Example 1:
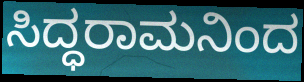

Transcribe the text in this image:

ಸಿದ್ಧರಾಮನಿಂದ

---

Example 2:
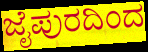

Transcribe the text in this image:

ಜೈಪುರದಿಂದ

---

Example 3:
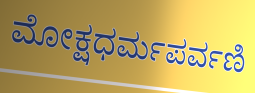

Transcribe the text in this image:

ಮೋಕ್ಷಧರ್ಮಪರ್ವಣಿ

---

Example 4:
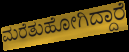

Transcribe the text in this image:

ಮರೆತುಹೋಗಿದ್ದಾರೆ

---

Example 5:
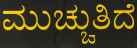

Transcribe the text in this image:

ಮುಚ್ಚುತಿದೆ